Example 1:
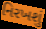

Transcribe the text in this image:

નિરખશું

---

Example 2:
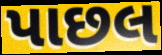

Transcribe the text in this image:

પાછલ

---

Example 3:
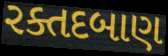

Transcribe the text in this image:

રક્તદબાણ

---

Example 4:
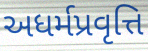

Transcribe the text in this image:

અધર્મપ્રવૃત્તિ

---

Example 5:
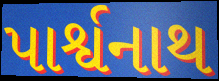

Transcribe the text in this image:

પાર્શ્વનાથ